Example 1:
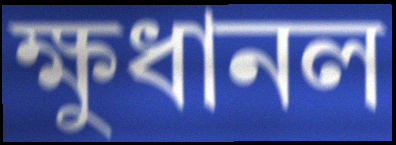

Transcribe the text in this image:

ক্ষুধানল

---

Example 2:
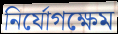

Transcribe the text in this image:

নির্যোগক্ষেম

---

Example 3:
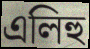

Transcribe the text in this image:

এলিহু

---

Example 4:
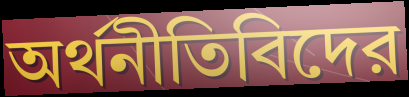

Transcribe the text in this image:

অর্থনীতিবিদের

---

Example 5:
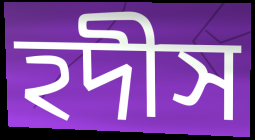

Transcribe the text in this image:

হদীস